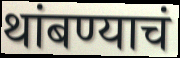
थांबण्याचं